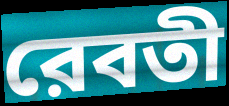
রেবতী